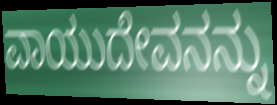
ವಾಯುದೇವನನ್ನು